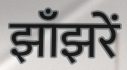
झाँझरें